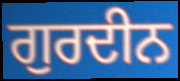
ਗੁਰਦੀਨ